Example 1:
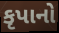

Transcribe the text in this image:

કૃપાનો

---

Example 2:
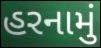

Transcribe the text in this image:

હરનામું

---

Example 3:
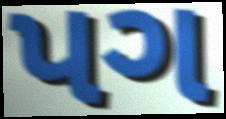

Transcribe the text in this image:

પગ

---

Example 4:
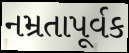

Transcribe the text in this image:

નમ્રતાપૂર્વક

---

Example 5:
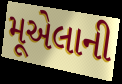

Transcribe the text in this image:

મૂએલાની